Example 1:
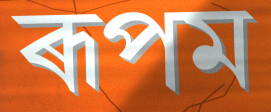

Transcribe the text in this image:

ৰূপম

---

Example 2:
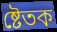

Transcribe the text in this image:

ষ্টেতক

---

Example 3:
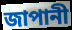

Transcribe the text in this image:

জাপানী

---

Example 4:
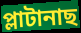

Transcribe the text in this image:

প্লাটানাছ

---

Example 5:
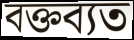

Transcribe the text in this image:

বক্তব্যত